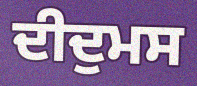
ਦੀਦੁਮਸ